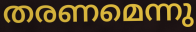
തരണമെന്നു